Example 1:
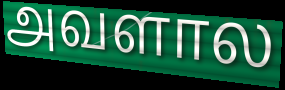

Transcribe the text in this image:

அவளால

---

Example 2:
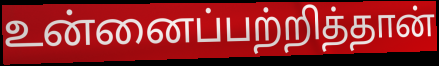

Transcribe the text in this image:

உன்னைப்பற்றித்தான்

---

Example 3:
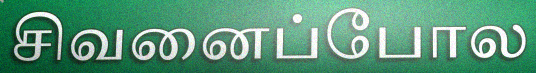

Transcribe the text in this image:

சிவனைப்போல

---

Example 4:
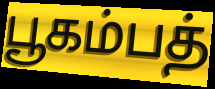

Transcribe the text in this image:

பூகம்பத்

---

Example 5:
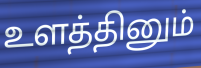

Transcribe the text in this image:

உளத்தினும்